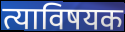
त्याविषयक